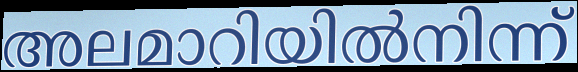
അലമാറിയിൽനിന്ന്